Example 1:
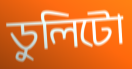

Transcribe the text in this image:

ডুলিটো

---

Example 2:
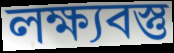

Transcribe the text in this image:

লক্ষ্যবস্তু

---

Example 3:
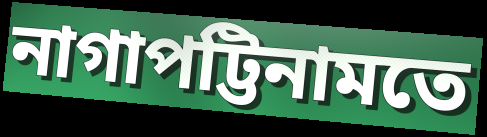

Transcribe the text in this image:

নাগাপট্টিনামতে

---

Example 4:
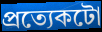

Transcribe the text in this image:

প্ৰত্যেকটো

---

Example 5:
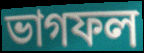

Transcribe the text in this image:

ভাগফল